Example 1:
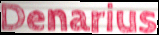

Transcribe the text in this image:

Denarius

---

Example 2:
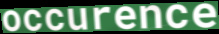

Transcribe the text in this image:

occurence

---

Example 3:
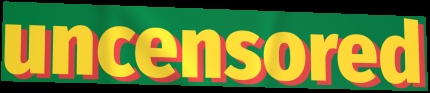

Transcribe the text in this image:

uncensored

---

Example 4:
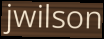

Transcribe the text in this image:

jwilson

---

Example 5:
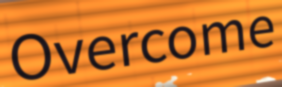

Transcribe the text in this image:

Overcome